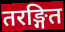
तरङ्गित